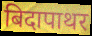
बिदापाथर